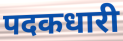
पदकधारी